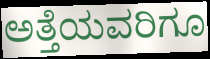
ಅತ್ತೆಯವರಿಗೂ